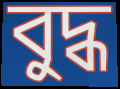
বুদ্ধ